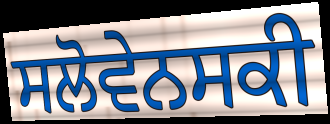
ਸਲੋਵੇਨਸਕੀ